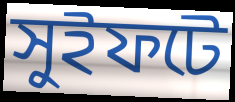
সুইফটে